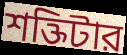
শক্তিটার